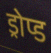
ड्रोप्ड